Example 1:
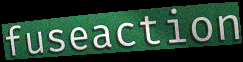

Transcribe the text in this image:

fuseaction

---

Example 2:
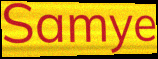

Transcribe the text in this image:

Samye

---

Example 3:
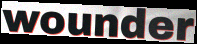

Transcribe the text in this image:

wounder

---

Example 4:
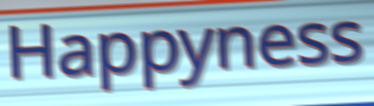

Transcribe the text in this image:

Happyness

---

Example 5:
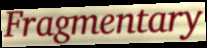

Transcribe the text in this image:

Fragmentary